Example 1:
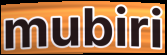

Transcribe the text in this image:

mubiri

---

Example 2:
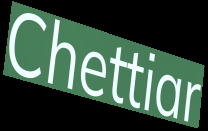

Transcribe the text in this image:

Chettiar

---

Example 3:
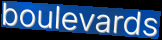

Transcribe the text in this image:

boulevards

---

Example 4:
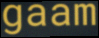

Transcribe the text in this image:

gaam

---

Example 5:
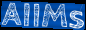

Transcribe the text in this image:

AIIMs